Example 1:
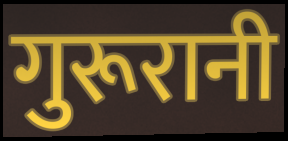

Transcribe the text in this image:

गुरूरानी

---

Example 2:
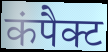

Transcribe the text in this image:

कंपैक्ट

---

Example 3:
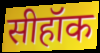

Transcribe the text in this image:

सीहॉक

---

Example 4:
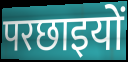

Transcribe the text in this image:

परछाइयों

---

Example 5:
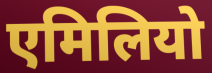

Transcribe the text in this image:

एमिलियो